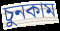
চুনকাম